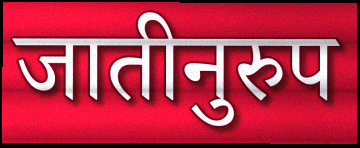
जातीनुरुप